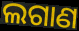
ଲଗାଣ